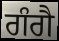
ਗੰਗੈ